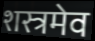
शस्त्रमेव